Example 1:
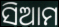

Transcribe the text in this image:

ସିଆମ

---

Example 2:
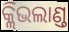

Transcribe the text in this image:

କ୍ଲିଭଲାଣ୍ଡ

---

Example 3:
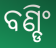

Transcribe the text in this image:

ବଣ୍ଡିଂ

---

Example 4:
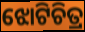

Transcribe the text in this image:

ଝୋଟିଚିତ୍ର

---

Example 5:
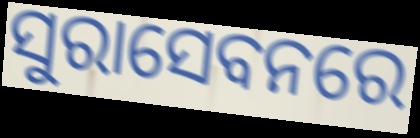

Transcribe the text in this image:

ସୁରାସେବନରେ